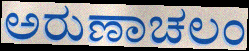
ಅರುಣಾಚಲಂ